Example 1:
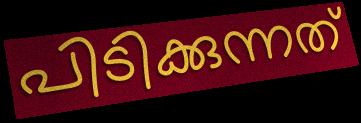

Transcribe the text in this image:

പിടിക്കുന്നത്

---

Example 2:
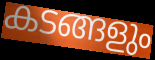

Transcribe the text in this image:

കടങ്ങളും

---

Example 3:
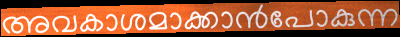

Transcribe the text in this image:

അവകാശമാക്കാൻപോകുന്ന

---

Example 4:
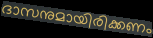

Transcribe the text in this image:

ദാസനുമായിരിക്കണം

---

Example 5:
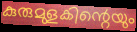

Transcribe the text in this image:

കുരുമുളകിന്റെയും